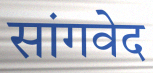
सांगवेद